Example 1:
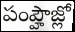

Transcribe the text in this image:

పంప్హౌజ్లో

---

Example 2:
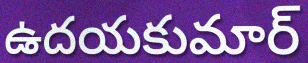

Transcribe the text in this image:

ఉదయకుమార్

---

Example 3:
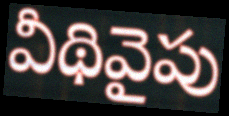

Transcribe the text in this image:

వీథివైపు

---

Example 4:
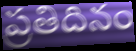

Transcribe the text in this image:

ప్రతిదినం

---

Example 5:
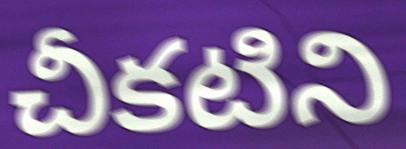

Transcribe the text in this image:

చీకటిని